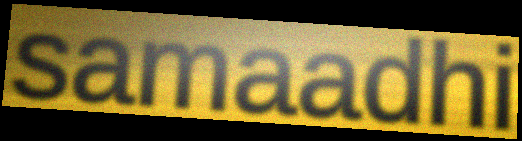
samaadhi